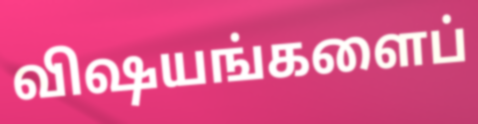
விஷயங்களைப்